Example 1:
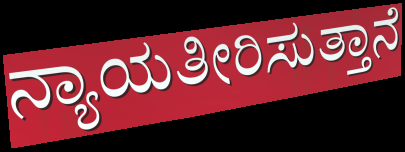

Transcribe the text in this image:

ನ್ಯಾಯತೀರಿಸುತ್ತಾನೆ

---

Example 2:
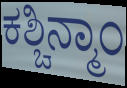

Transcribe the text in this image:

ಕಶ್ಚಿನ್ಮಾಂ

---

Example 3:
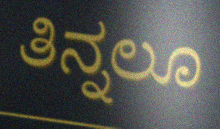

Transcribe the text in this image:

ತಿನ್ನಲೂ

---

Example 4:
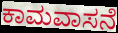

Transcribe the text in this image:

ಕಾಮವಾಸನೆ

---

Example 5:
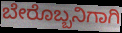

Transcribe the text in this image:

ಬೇರೊಬ್ಬನಿಗಾಗಿ